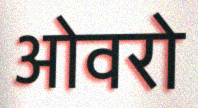
ओवरो